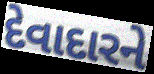
દેવાદારને